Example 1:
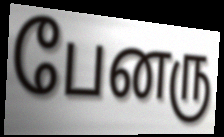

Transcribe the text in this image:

பேனரு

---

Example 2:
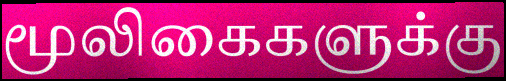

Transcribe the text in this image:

மூலிகைகளுக்கு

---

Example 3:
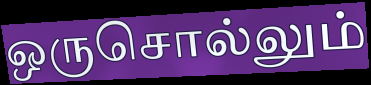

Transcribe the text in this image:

ஒருசொல்லும்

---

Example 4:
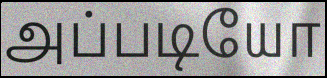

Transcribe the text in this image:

அப்படியோ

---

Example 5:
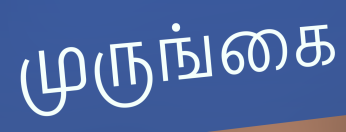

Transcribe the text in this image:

முருங்கை